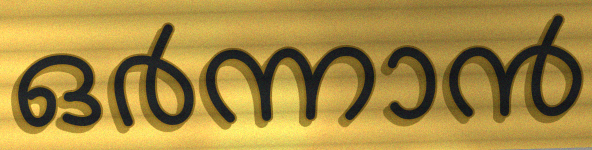
ഒർന്നാൻ